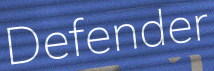
Defender